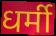
धर्मी